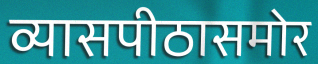
व्यासपीठासमोर